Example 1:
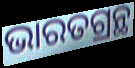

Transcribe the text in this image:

ଭାରତଗ୍ରନ୍ଥ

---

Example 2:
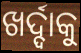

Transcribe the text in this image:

ଖର୍ଦ୍ଦାକୁ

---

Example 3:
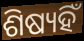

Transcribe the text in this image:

ଶିଷ୍ୟହିଁ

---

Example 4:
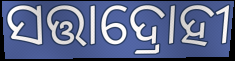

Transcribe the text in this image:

ସତ୍ତାଦ୍ରୋହୀ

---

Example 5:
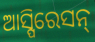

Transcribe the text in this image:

ଆସ୍ପିରେସନ୍